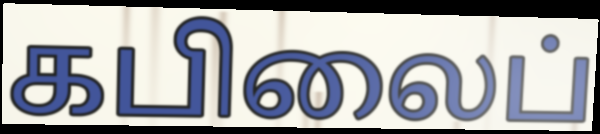
கபிலைப்